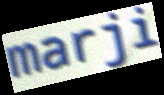
marji